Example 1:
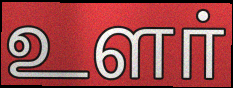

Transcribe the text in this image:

உளர்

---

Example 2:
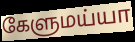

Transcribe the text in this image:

கேளுமய்யா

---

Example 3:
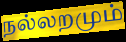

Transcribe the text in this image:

நல்லறமும்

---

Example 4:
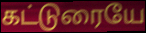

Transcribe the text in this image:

கட்டுரையே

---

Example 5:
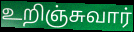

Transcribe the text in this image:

உறிஞ்சுவார்